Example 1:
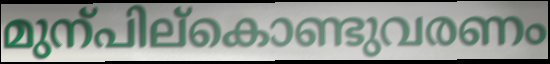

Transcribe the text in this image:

മുന്പില്കൊണ്ടുവരണം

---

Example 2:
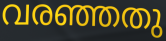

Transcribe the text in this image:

വരഞ്ഞതു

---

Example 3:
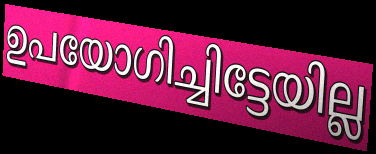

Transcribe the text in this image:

ഉപയോഗിച്ചിട്ടേയില്ല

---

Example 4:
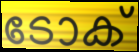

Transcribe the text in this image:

ടോക്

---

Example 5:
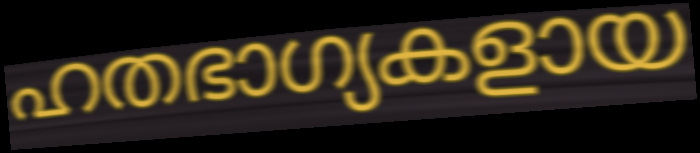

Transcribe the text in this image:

ഹതഭാഗ്യകളായ